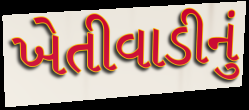
ખેતીવાડીનું